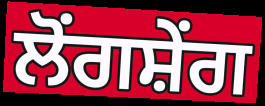
ਲੋਂਗਸ਼ੇਂਗ